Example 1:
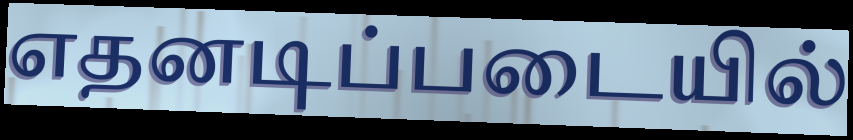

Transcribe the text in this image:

எதனடிப்படையில்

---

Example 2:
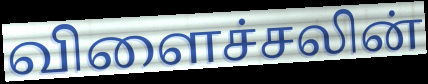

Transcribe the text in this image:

விளைச்சலின்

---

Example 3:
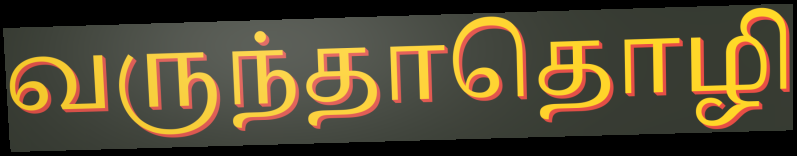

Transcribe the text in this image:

வருந்தாதொழி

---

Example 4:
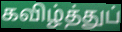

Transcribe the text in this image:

கவிழ்த்துப்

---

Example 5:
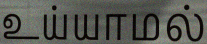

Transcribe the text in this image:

உய்யாமல்